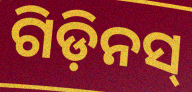
ଗିଡ଼ିନସ୍